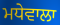
ਮਧੇਵਾਲਾ